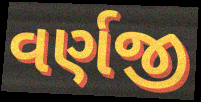
વર્ણજી